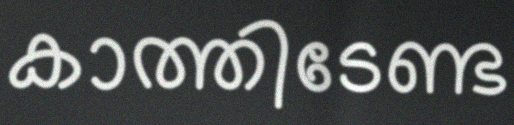
കാത്തിടേണ്ട